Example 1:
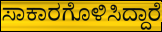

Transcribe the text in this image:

ಸಾಕಾರಗೊಳಿಸಿದ್ದಾರೆ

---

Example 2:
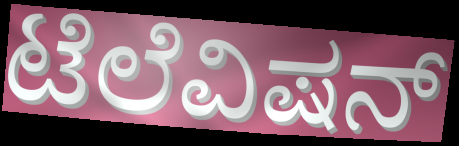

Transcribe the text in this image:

ಟೆಲೆವಿಷನ್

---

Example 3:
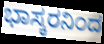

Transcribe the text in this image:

ಭಾಸ್ಕರನಿಂದ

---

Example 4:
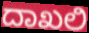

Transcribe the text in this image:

ದಾಖಲಿ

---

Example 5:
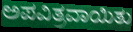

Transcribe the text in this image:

ಅಪವಿತ್ರವಾಯಿತು